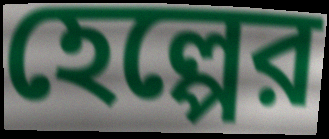
হেল্পের